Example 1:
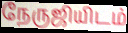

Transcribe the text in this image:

நேருஜியிடம்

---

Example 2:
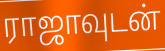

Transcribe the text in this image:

ராஜாவுடன்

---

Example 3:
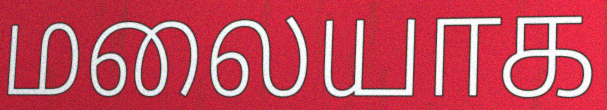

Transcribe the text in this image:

மலையாக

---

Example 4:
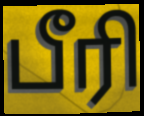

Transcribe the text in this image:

பீரி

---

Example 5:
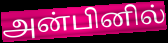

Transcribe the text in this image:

அன்பினில்